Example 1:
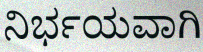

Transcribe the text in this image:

ನಿರ್ಭಯವಾಗಿ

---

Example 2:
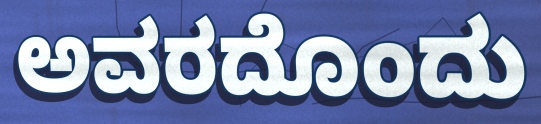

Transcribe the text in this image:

ಅವರದೊಂದು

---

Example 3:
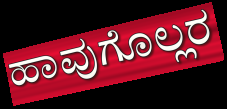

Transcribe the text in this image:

ಹಾವುಗೊಲ್ಲರ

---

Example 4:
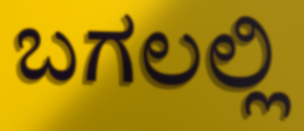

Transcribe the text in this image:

ಬಗಲಲ್ಲಿ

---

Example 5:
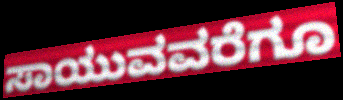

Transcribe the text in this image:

ಸಾಯುವವರೆಗೂ